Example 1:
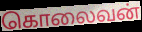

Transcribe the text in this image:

கொலைவன்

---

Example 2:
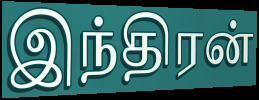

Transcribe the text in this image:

இந்திரன்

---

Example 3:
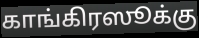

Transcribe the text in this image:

காங்கிரஸூக்கு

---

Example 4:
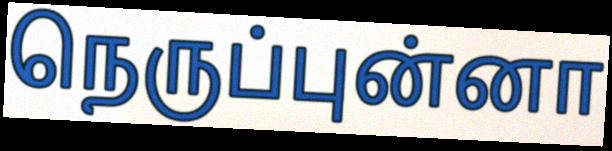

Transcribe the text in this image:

நெருப்புன்னா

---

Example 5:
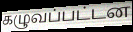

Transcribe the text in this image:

கழுவப்பட்டன